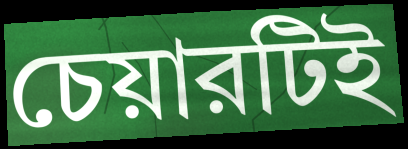
চেয়ারটিই